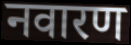
नवारण